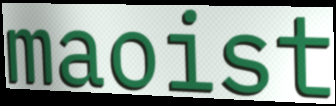
maoist